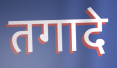
तगादे